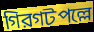
গিরগটপল্লে